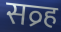
सव्र्ह